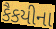
કૈકયીના